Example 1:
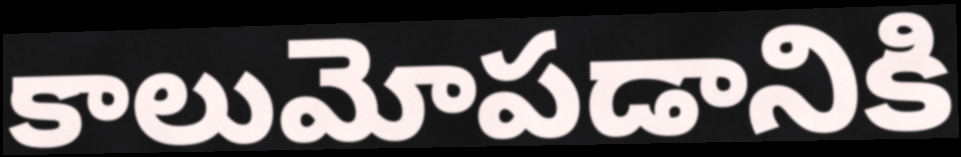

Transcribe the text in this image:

కాలుమోపడానికి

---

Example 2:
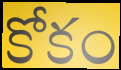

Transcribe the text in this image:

కోకం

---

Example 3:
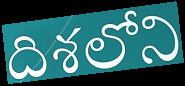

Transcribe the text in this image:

దిశలోని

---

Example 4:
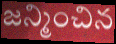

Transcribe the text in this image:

జన్మించిన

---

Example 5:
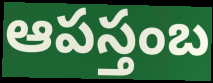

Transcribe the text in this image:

ఆపస్తంబ